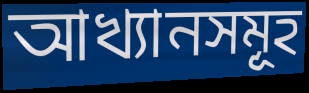
আখ্যানসমূহ